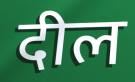
दील